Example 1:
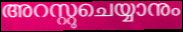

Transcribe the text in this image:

അറസ്റ്റുചെയ്യാനും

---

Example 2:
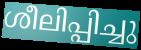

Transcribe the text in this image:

ശീലിപ്പിച്ചു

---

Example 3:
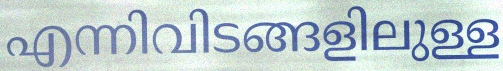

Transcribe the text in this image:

എന്നിവിടങ്ങളിലുള്ള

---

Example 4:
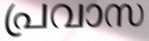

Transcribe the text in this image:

പ്രവാസ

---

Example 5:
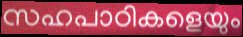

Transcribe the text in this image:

സഹപാഠികളെയും